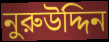
নুরুউদ্দিন